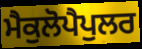
ਮੈਕੁਲੋਪੈਪੁਲਰ